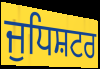
ਜੁਧਿਸ਼ਟਰ